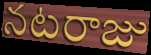
నటరాజు